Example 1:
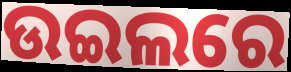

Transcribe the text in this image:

ଉଇଲରେ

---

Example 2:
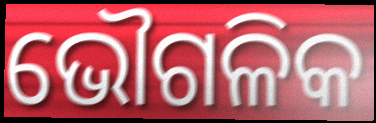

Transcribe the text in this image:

ଭୌଗଳିକ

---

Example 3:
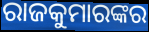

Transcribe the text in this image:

ରାଜକୁମାରଙ୍କର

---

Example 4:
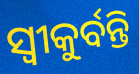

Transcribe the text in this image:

ସ୍ଵୀକୁର୍ବନ୍ତି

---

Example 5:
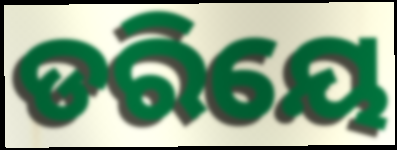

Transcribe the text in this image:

ଡରିୟେ